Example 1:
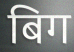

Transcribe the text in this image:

बिग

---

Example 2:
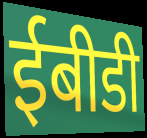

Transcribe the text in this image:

ईबीडी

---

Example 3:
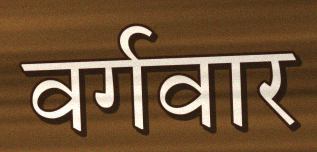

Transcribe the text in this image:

वर्गवार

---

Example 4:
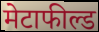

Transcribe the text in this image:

मेटाफील्ड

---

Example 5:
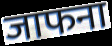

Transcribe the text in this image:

जाफना